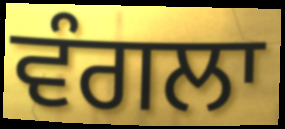
ਵੰਗਲਾ